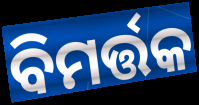
ବିମର୍ତ୍ତକ